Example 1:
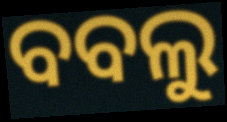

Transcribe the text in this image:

ବବଲୁ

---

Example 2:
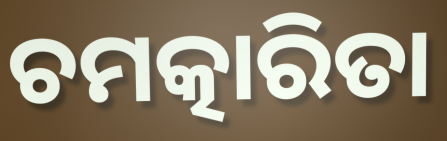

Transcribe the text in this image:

ଚମତ୍କାରିତା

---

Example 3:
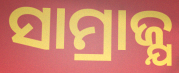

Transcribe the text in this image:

ସାମ୍ରାଜ୍ଯ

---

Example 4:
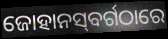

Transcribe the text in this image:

ଜୋହାନସ୍‌ବର୍ଗଠାରେ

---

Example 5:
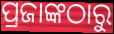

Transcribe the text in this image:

ପ୍ରଜାଙ୍କଠାରୁ